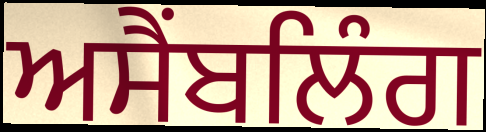
ਅਸੈਂਬਲਿੰਗ